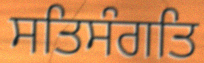
ਸਤਿਸੰਗਤਿ